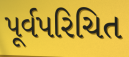
પૂર્વપરિચિત